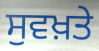
ਸੁਵਖ਼ਤੇ